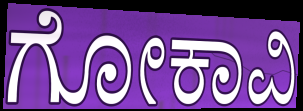
ಗೋಕಾವಿ